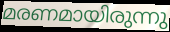
മരണമായിരുന്നു